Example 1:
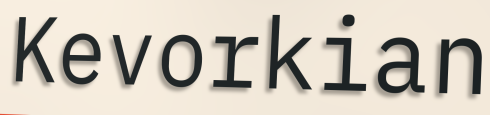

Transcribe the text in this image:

Kevorkian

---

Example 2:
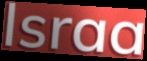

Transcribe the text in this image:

Israa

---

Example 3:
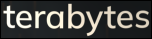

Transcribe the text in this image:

terabytes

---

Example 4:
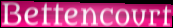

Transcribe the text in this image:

Bettencourt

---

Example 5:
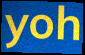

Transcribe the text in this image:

yoh